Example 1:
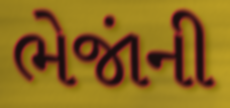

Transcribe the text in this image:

ભેજાંની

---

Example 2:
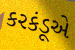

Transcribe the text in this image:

કરકંડૂએ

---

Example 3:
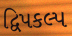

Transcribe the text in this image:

દ્વિપકલ્પ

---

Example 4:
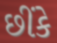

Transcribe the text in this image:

છીંકે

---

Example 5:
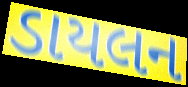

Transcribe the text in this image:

ડાયલન